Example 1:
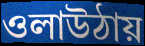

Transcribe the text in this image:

ওলাউঠায়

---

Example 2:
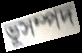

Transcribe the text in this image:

ভূসম্পদ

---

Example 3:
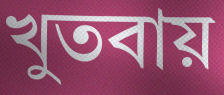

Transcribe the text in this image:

খুতবায়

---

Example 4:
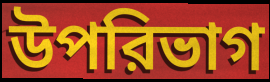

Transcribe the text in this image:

উপরিভাগ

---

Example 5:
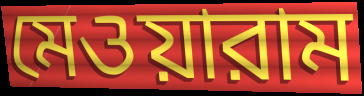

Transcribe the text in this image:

মেওয়ারাম